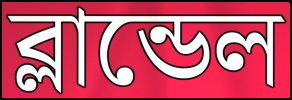
ব্লান্ডেল